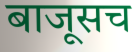
बाजूसच